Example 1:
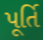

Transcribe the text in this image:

પૂર્તિ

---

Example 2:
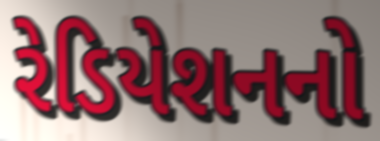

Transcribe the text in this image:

રેડિયેશનનો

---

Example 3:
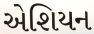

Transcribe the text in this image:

એશિયન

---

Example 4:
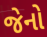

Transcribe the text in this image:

જેનો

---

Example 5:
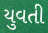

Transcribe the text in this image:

યુવતી